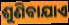
ଶୁଣିବାଯାଏ